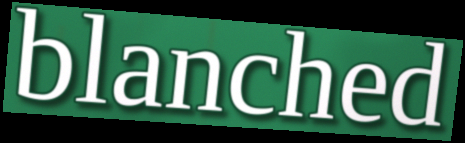
blanched